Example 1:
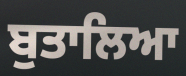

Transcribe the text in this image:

ਬੁਤਾਲਿਆ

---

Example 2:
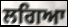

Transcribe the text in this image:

ਲਗਿਆ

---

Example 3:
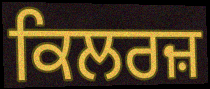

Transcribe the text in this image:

ਕਿਲਰਜ਼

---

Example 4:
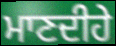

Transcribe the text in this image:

ਮਾਣਦੀਹੇ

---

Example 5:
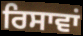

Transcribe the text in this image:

ਰਿਸਾਵਾਂ